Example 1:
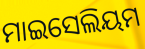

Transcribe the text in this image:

ମାଇସେଲିୟମ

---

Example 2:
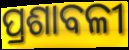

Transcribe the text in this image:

ପ୍ରଶାବଳୀ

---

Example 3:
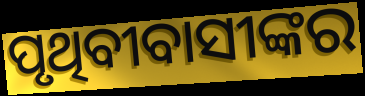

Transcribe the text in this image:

ପୃଥିବୀବାସୀଙ୍କର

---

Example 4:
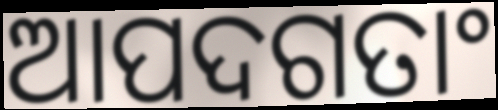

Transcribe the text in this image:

ଆପଦଗତାଂ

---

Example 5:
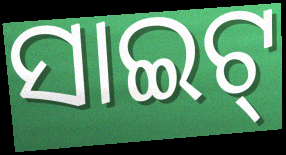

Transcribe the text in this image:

ସାଇଟ୍